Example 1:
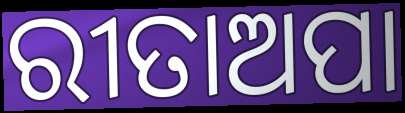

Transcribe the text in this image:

ରୀତାଅପା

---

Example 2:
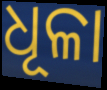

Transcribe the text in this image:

ଧୂଳା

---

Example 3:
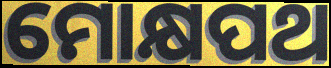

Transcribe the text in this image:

ମୋକ୍ଷପଥ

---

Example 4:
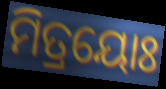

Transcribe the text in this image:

ମିତ୍ରୟୋଃ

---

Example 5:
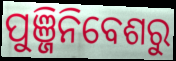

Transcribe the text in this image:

ପୁଞ୍ଜିନିବେଶରୁ